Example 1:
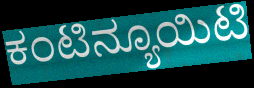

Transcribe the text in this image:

ಕಂಟಿನ್ಯೂಯಿಟಿ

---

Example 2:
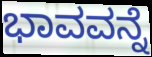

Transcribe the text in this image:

ಭಾವವನ್ನೆ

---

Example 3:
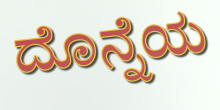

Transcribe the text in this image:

ದೊನ್ನೆಯ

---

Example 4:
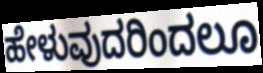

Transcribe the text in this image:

ಹೇಳುವುದರಿಂದಲೂ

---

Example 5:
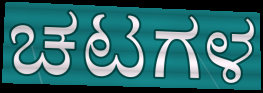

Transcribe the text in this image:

ಚಟಗಳ